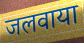
जलवाया